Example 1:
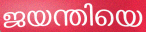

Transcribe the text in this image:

ജയന്തിയെ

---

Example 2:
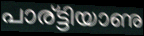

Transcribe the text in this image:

പാര്ട്ടിയാണു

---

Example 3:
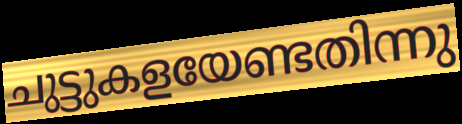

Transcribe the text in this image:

ചുട്ടുകളയേണ്ടതിന്നു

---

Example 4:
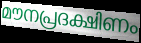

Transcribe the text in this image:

മൗനപ്രദക്ഷിണം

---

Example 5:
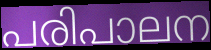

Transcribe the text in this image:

പരിപാലന